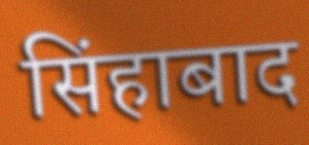
सिंहाबाद